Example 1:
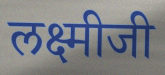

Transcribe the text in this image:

लक्ष्मीजी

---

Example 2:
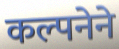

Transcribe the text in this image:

कल्पनेने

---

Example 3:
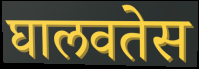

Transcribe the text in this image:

घालवतेस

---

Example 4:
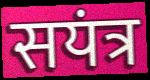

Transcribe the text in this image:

सयंत्र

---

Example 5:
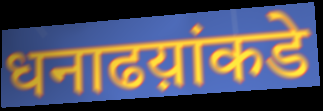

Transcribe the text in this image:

धनाढय़ांकडे